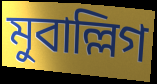
মুবাল্লিগ